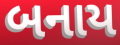
બનાય